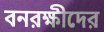
বনরক্ষীদের